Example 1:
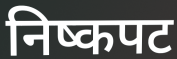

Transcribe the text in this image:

निष्कपट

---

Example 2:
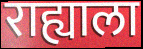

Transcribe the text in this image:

राह्याला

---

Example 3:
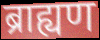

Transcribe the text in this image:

ब्राह्यण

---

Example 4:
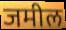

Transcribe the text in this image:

जमील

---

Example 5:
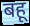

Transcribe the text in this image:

बहू